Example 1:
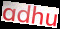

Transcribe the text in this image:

adhu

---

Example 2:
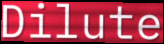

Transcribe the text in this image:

Dilute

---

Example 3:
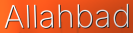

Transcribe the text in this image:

Allahbad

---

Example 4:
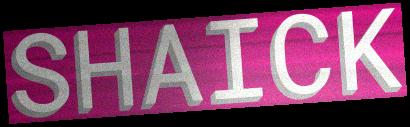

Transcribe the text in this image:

SHAICK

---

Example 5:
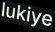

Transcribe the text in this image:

lukiye